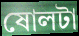
ষোলটা